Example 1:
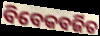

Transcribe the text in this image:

ବିବେକବର୍ଜିତ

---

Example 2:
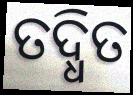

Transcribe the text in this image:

ତଦ୍ଧିତ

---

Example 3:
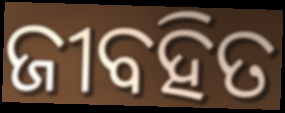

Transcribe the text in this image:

ଜୀବହିତ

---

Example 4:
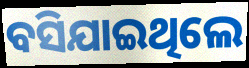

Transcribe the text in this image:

ବସିଯାଇଥିଲେ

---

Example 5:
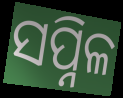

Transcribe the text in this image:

ସପ୍ନିଳ